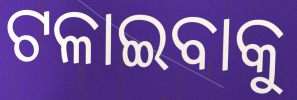
ଟଳାଇବାକୁ